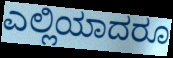
ಎಲ್ಲಿಯಾದರೂ